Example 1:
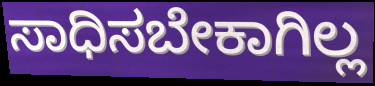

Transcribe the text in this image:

ಸಾಧಿಸಬೇಕಾಗಿಲ್ಲ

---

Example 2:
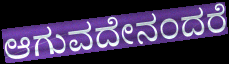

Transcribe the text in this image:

ಆಗುವದೇನಂದರೆ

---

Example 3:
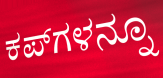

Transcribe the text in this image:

ಕಪ್‌ಗಳನ್ನೂ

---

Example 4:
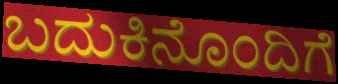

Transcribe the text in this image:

ಬದುಕಿನೊಂದಿಗೆ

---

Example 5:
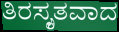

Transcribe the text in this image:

ತಿರಸ್ಕೃತವಾದ